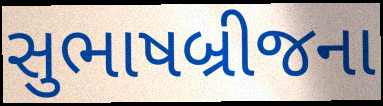
સુભાષબ્રીજના